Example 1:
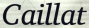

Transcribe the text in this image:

Caillat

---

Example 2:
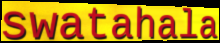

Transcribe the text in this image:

swatahala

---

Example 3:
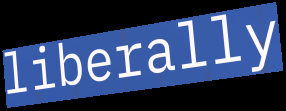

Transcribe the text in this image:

liberally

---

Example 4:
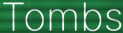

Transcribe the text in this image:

Tombs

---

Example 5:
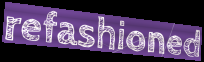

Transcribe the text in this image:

refashioned